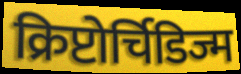
क्रिप्टोर्चिडिज्म